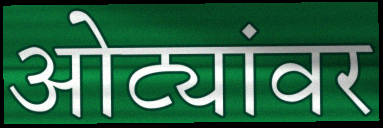
ओट्यांवर